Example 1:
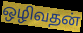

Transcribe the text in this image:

ஒழிவதன்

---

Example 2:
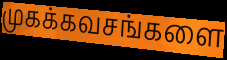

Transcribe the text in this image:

முகக்கவசங்களை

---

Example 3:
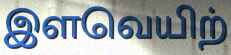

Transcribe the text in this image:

இளவெயிற்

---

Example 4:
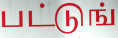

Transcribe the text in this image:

பட்டுங்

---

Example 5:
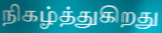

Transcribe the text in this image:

நிகழ்த்துகிறது